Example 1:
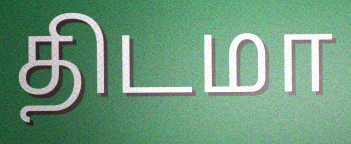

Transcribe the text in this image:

திடமா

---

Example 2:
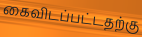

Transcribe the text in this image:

கைவிடப்பட்டதற்கு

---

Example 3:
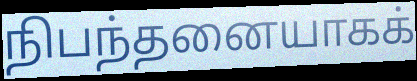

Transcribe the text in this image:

நிபந்தனையாகக்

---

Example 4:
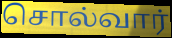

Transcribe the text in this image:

சொல்வார்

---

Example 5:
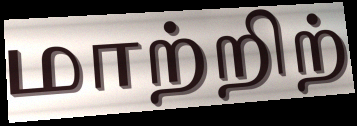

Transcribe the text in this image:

மாற்றிற்